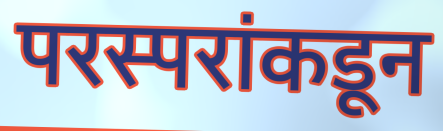
परस्परांकडून